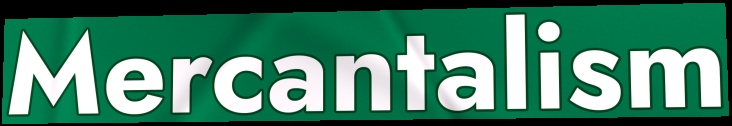
Mercantalism